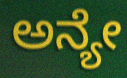
ಅನ್ಯೇ